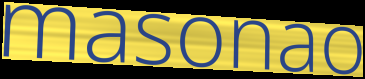
masonao